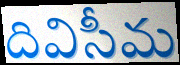
దివిసీమ